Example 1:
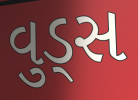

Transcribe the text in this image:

વુડ્સ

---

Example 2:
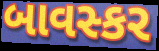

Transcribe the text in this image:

બાવસ્કર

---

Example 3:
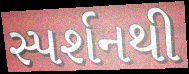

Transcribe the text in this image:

સ્પર્શનથી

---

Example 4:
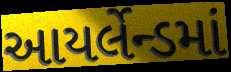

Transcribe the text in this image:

આયર્લેન્ડમાં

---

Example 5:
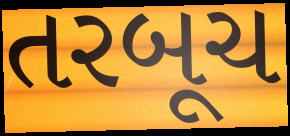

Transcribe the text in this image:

તરબૂચ